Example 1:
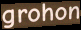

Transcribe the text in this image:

grohon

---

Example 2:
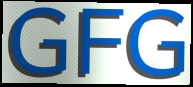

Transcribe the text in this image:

GFG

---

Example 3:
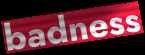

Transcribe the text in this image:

badness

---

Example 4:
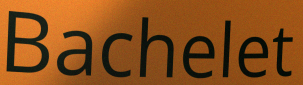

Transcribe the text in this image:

Bachelet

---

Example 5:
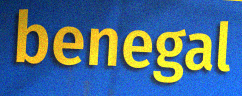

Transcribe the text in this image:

benegal